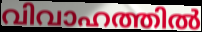
വിവാഹത്തിൽ